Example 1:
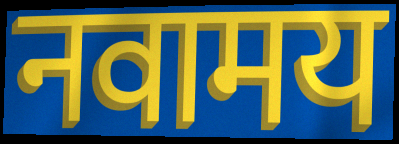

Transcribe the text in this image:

नवामय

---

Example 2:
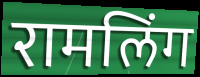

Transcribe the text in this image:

रामलिंग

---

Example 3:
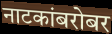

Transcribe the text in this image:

नाटकांबरोबर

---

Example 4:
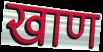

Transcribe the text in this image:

खाण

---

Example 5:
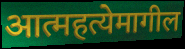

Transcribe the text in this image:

आत्महत्येमागील